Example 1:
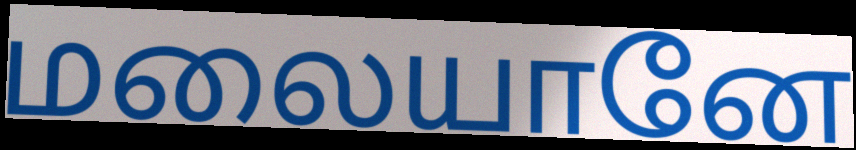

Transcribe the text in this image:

மலையானே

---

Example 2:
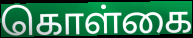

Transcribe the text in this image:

கொள்கை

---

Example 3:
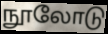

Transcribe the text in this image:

நூலோடு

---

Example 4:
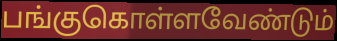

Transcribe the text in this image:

பங்குகொள்ளவேண்டும்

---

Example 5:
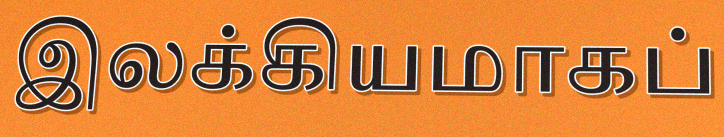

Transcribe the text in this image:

இலக்கியமாகப்